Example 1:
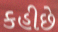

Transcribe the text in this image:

કહીછે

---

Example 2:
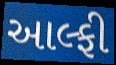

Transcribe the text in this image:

આલ્ફી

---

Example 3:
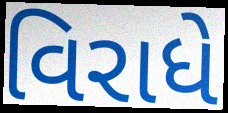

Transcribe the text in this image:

વિરાધે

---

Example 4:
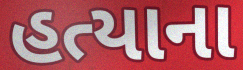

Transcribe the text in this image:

હત્યાના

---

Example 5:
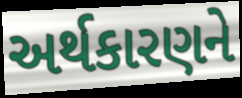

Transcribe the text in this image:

અર્થકારણને